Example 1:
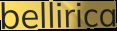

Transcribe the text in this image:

bellirica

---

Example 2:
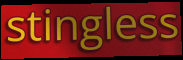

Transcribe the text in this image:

stingless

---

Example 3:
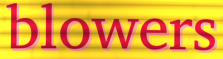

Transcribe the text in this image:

blowers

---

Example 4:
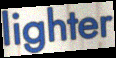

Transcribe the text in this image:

lighter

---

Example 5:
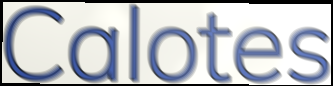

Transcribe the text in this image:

Calotes